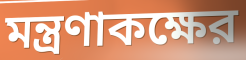
মন্ত্রণাকক্ষের